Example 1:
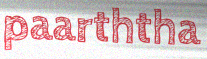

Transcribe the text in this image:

paarththa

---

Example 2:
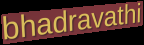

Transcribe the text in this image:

bhadravathi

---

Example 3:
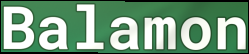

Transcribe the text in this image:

Balamon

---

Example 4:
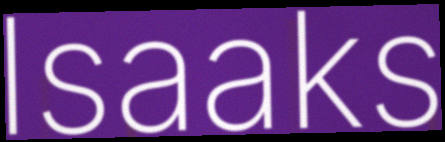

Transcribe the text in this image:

Isaaks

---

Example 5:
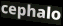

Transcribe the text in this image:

cephalo